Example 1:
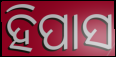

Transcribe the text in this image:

ହିପାସ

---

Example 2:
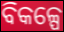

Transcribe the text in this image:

ବିକଳ୍ପେ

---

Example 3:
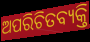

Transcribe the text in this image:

ଅପରିଚିତବ୍ୟକ୍ତି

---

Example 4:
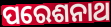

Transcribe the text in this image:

ପରେଶନାଥ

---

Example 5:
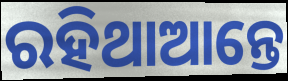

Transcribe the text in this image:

ରହିଥାଆନ୍ତେ